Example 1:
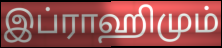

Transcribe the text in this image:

இப்ராஹிமும்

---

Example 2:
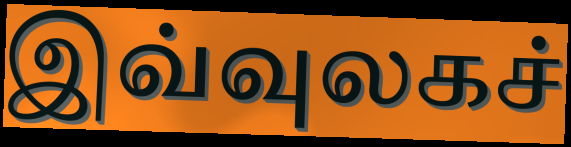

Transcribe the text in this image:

இவ்வுலகச்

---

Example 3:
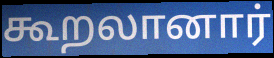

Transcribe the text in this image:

கூறலானார்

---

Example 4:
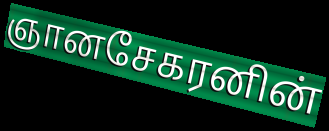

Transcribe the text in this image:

ஞானசேகரனின்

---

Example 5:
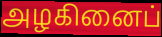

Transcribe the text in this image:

அழகினைப்